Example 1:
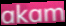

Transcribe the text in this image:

akam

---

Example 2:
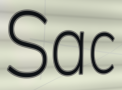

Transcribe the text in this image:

Sac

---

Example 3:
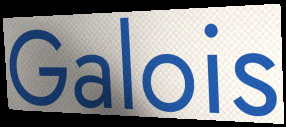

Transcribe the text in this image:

Galois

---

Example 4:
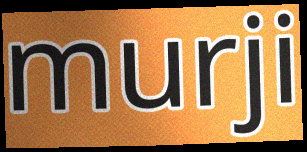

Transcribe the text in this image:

murji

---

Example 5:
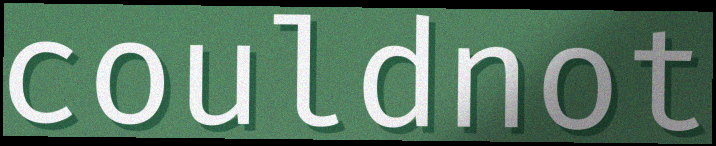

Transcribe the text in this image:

couldnot